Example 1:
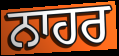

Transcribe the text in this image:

ਨਾਹਰ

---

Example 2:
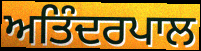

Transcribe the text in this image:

ਅਤਿੰਦਰਪਾਲ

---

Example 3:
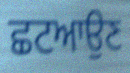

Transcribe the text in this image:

ਛਟਆਉਣ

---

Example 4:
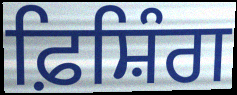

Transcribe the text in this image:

ਫ਼ਿਸ਼ਿੰਗ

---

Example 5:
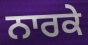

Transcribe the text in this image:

ਨਾਰਕੇ